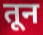
तून